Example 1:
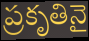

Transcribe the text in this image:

ప్రకృతినై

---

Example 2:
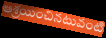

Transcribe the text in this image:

ఆశ్రయించినటువంటి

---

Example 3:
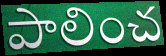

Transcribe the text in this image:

పాలించ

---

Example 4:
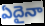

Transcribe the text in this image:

ఏదైనా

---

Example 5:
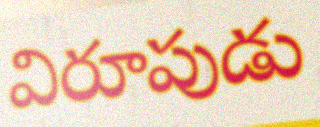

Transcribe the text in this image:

విరూపుడు